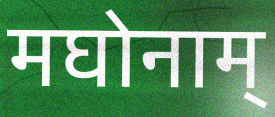
मघोनाम्